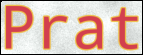
Prat